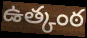
ఉత్కంఠ